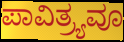
ಪಾವಿತ್ರ್ಯವೂ